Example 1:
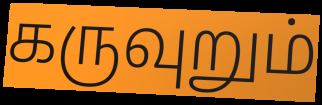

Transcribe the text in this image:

கருவுறும்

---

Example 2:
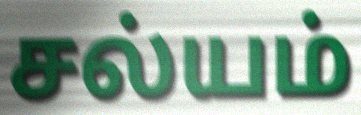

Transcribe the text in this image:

சல்யம்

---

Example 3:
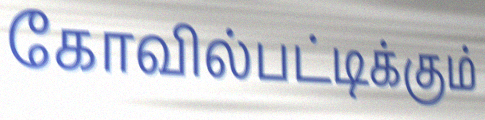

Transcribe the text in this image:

கோவில்பட்டிக்கும்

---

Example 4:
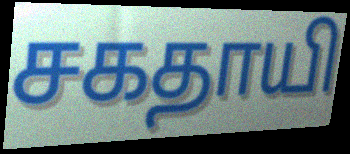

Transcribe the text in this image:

சகதாயி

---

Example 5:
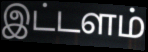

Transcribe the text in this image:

இட்டளம்